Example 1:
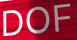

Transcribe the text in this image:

DOF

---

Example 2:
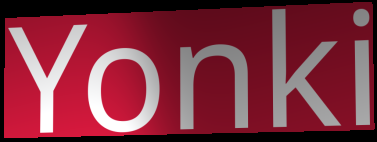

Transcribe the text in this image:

Yonki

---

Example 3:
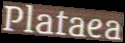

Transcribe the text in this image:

Plataea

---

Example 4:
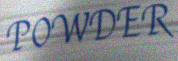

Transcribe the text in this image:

POWDER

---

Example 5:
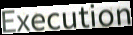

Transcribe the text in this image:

Execution